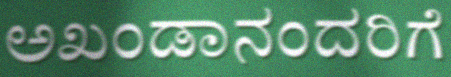
ಅಖಂಡಾನಂದರಿಗೆ